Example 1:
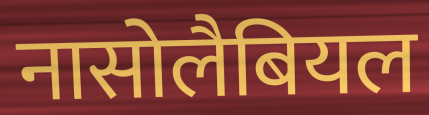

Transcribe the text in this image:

नासोलैबियल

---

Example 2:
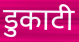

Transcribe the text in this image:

डुकाटी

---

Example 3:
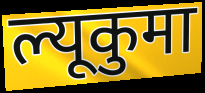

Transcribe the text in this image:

ल्यूकुमा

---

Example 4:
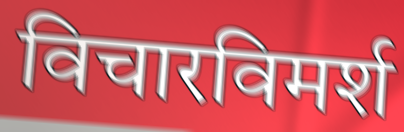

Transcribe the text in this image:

विचारविमर्श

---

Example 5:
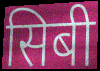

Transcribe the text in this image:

सिबी